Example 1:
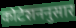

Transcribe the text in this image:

कोटेशननुसार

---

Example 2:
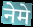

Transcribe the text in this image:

नेमे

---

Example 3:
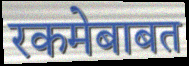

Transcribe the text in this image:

रकमेबाबत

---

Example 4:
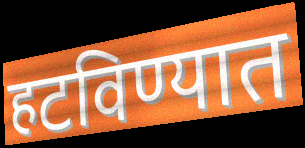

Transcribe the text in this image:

हटविण्यात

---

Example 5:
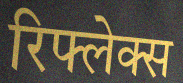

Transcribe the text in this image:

रिफ्लेक्स